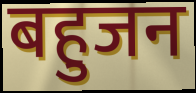
बहुजन